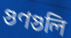
গুণগুলি